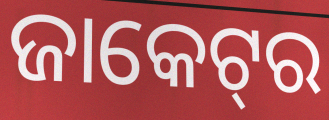
ଜାକେଟ୍‌ର